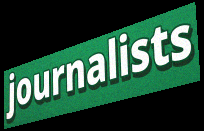
journalists